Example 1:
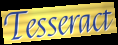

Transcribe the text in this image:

Tesseract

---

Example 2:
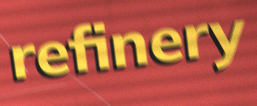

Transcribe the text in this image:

refinery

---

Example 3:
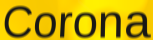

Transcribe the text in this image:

Corona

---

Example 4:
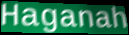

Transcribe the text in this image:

Haganah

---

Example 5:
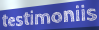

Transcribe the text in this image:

testimoniis